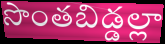
సొంతబిడ్డల్లా